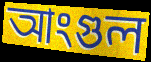
আংগুল